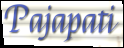
Pajapati